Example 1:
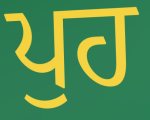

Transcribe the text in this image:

ਪੁਹ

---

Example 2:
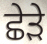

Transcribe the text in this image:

ਛੇੜੇ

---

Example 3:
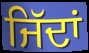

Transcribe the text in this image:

ਜਿੱਦਾਂ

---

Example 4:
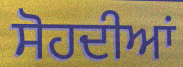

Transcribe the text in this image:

ਸੋਹਦੀਆਂ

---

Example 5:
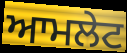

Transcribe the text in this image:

ਆਮਲੇਟ